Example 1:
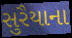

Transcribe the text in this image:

સુરૈયાના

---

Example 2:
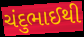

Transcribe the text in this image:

ચંદુભાઈથી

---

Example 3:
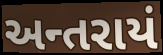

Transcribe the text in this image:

અન્તરાયં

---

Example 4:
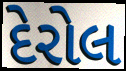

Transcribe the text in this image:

દેરોલ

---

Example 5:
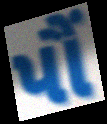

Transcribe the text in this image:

પૌં